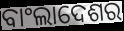
ବାଂଲାଦେଶର